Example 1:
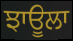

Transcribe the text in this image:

ਝਾਊਲਾ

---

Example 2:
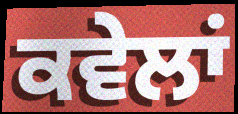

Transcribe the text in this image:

ਕਵੇਲਾਂ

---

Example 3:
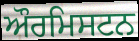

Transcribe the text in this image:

ਔਰਮਿਸਟਨ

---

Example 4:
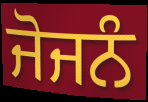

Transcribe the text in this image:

ਜੋਜਨੰ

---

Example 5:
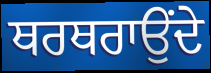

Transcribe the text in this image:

ਥਰਥਰਾਉਂਦੇ